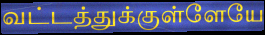
வட்டத்துக்குள்ளேயே